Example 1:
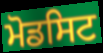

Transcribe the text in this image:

ਮੋਡਸਿਟ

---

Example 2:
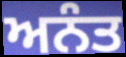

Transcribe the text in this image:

ਅਨੰਤ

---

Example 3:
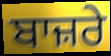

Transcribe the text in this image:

ਬਾਜ਼ਰੇ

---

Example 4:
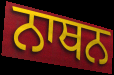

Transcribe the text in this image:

ਨਾਥਨ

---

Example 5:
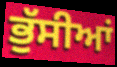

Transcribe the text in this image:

ਭੁੱਸੀਆਂ